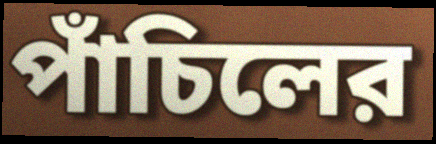
পাঁচিলের